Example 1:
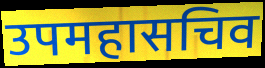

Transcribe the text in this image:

उपमहासचिव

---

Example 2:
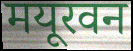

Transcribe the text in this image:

मयूरवन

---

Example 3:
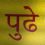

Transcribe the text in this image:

पुढे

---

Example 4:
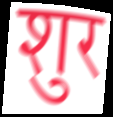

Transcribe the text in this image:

शुर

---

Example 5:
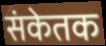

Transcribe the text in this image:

संकेतक